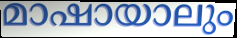
മാഷായാലും